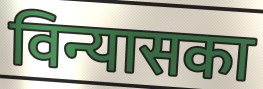
विन्यासका